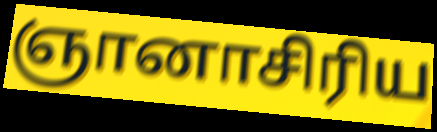
ஞானாசிரிய